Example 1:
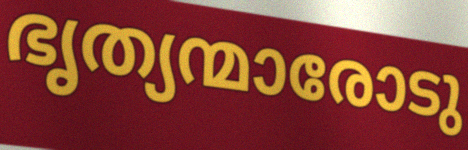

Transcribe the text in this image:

ഭൃത്യന്മാരോടു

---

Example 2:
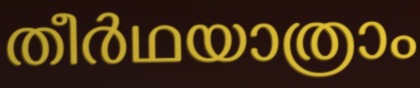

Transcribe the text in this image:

തീർഥയാത്രാം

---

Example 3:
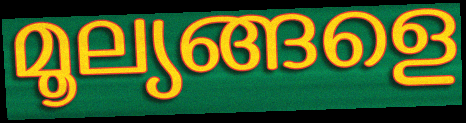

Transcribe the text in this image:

മൂല്യങ്ങളെ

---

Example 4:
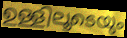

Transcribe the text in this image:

ഉള്ളിലൂടെയും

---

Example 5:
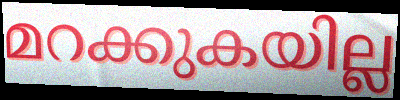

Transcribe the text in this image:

മറക്കുകയില്ല